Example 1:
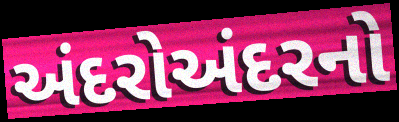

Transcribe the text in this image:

અંદરોઅંદરનો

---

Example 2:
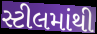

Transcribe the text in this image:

સ્ટીલમાંથી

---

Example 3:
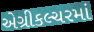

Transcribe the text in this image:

એગ્રીકલ્ચરમાં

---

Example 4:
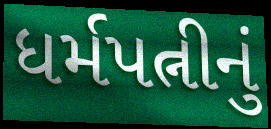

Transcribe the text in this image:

ધર્મપત્નીનું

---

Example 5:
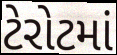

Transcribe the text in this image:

ટેરોટમાં